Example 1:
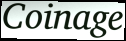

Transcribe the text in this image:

Coinage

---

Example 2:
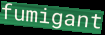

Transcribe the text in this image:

fumigant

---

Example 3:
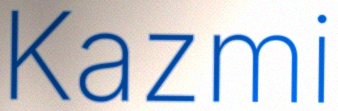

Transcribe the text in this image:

Kazmi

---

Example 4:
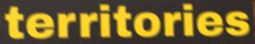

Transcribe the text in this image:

territories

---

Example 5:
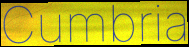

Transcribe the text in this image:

Cumbria